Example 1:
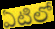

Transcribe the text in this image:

ఏటిలో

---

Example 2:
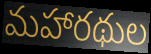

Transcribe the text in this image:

మహారథుల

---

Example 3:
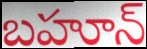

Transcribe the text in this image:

బహూన్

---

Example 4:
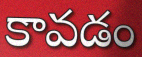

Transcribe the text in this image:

కావడం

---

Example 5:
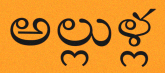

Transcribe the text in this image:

అల్లుళ్ల